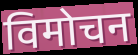
विमोचन